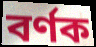
বর্ণক